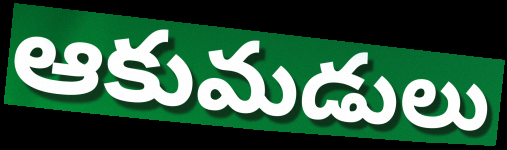
ఆకుమడులు